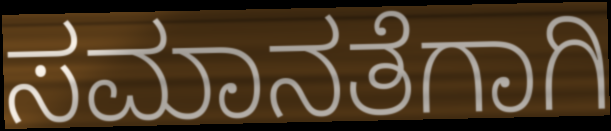
ಸಮಾನತೆಗಾಗಿ